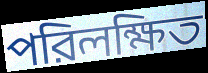
পরিলক্ষিত